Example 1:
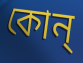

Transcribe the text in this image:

কোন্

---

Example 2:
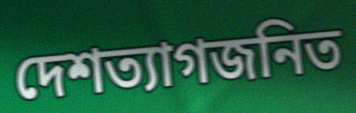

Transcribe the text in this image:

দেশত্যাগজনিত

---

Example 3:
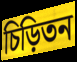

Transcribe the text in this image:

চিড়িতন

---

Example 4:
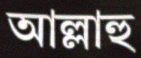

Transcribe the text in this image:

আল্লাহু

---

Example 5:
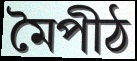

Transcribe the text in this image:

মৈপীঠ